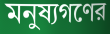
মনুষ্যগণের